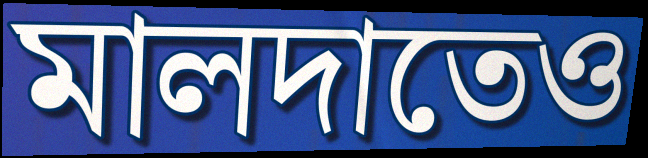
মালদাতেও